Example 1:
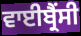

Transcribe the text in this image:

ਵਾਈਬ੍ਰੈਂਸੀ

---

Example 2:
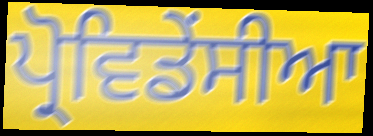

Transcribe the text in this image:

ਪ੍ਰੋਵਿਡੇਂਸੀਆ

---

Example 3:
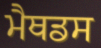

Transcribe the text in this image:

ਮੈਥਡਸ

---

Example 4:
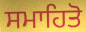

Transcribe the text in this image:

ਸਮਾਹਿਤੋ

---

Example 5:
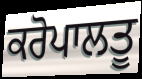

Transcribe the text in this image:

ਕਰੋਪਾਲਤੂ